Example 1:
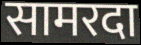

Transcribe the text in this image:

सामरदा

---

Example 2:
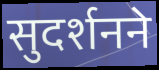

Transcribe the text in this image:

सुदर्शनने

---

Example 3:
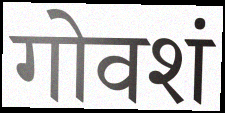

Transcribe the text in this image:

गोवशं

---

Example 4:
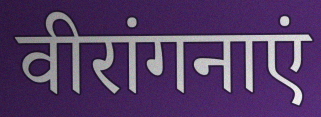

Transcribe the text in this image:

वीरांगनाएं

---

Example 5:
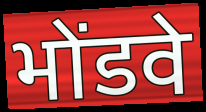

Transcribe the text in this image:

भोंडवे